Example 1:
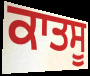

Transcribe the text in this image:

ਕਾਤਸੂ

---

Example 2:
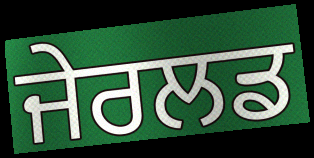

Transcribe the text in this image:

ਜੇਰਲਡ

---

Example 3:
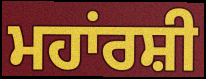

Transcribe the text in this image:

ਮਹਾਂਰਸ਼ੀ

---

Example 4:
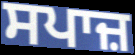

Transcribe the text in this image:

ਸਪਾਜ਼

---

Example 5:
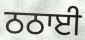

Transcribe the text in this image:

ਠਠਾਈ